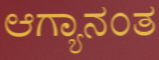
ಆಗ್ಯಾನಂತ